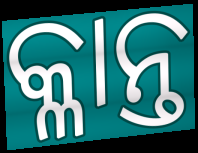
କ୍ଳାନ୍ତ